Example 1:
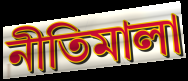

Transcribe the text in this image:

নীতিমালা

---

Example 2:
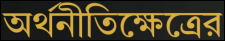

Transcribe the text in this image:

অর্থনীতিক্ষেত্রের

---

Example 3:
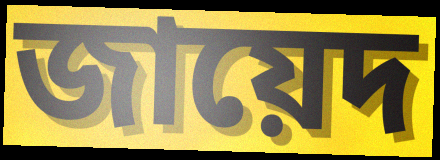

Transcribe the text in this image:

জায়েদ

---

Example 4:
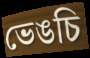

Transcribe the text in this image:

ভেঙচি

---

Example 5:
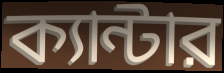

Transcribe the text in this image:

ক্যান্টার